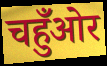
चहुँओर